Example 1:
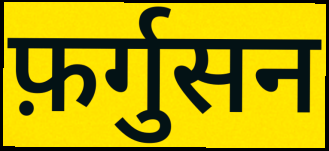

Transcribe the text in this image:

फ़र्गुसन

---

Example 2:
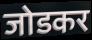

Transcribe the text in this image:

जोडकर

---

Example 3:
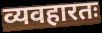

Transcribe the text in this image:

व्यवहारतः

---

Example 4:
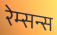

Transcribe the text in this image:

रेम्सन्स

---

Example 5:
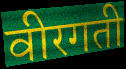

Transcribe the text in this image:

वीरगती